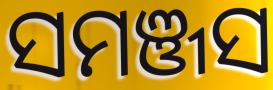
ସମଞ୍ଜସ